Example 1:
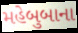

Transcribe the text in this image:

મહેબુબાના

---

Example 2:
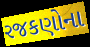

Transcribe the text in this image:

રજકણોના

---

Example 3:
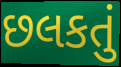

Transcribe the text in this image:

છલકતું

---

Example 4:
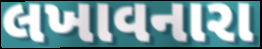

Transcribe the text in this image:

લખાવનારા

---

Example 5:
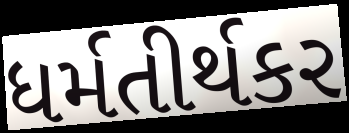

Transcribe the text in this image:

ધર્મતીર્થકર